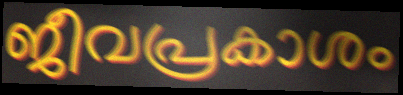
ജീവപ്രകാശം